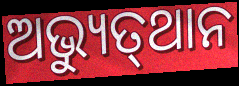
ଅଭ୍ୟୁତ୍‌ଥାନ